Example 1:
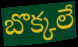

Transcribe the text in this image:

బొక్కలే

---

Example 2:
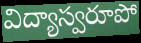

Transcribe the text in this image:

విద్యాస్వరూపో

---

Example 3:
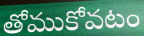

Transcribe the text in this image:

తోముకోవటం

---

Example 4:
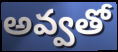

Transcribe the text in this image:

అవ్వతో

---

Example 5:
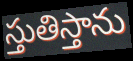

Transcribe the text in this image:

స్తుతిస్తాను